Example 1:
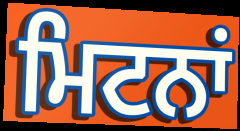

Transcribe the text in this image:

ਮਿਟਨਾਂ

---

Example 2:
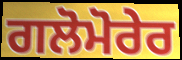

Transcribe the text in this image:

ਗਲੋਮੋਰੇਰ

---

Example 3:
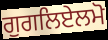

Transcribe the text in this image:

ਗੁਗਲਿਏਲਮੋ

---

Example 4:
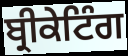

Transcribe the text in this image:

ਬ੍ਰੀਕੇਟਿੰਗ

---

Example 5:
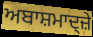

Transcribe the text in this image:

ਅਬਾਸ਼ਮਾਦ੍ਜ਼ੇ